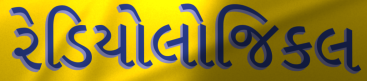
રેડિયોલોજિકલ